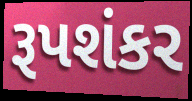
રૂપશંકર